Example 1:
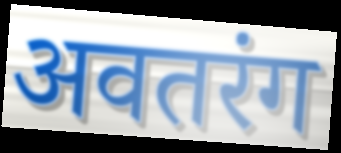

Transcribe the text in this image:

अवतरंग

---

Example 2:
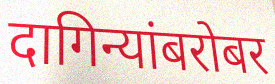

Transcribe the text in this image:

दागिन्यांबरोबर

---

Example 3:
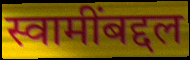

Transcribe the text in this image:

स्वामींबद्दल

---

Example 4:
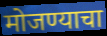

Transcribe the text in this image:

मोजण्याचा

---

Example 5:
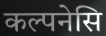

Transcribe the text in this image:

कल्पनेसि